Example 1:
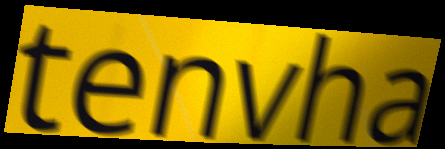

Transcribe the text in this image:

tenvha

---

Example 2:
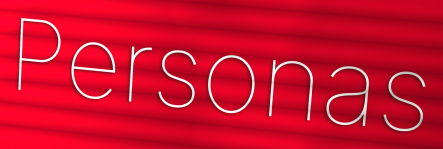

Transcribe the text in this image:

Personas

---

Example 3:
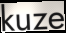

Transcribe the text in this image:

kuze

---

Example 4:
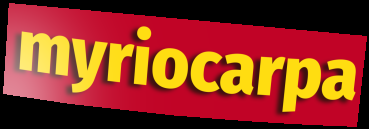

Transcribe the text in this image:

myriocarpa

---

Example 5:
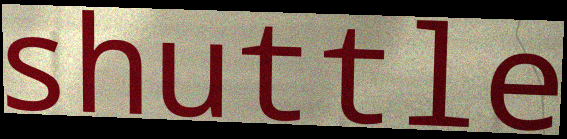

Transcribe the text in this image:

shuttle